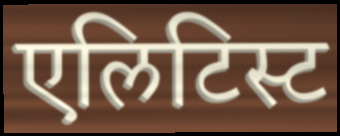
एलिटिस्ट